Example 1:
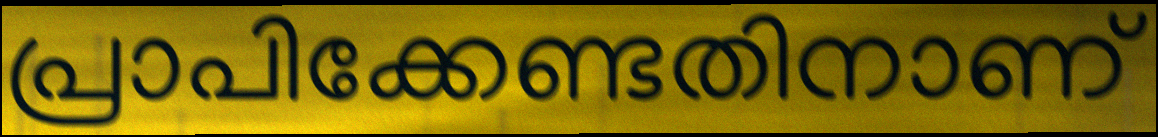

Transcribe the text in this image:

പ്രാപിക്കേണ്ടതിനാണ്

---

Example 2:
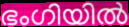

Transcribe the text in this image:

ഭംഗിയിൽ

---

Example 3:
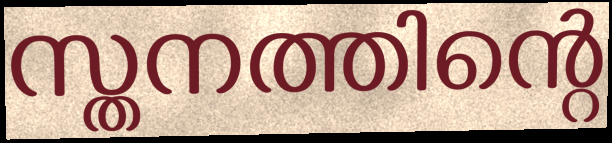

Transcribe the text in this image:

സ്തനത്തിന്റെ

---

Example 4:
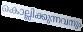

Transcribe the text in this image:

കൊല്ലിക്കുന്നവനും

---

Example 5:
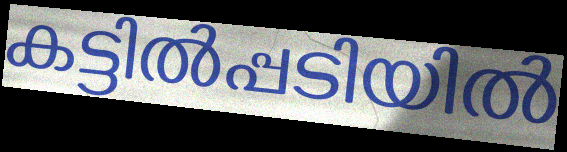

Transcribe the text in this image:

കട്ടിൽപ്പടിയിൽ